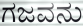
ಗಜವನು